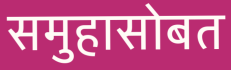
समुहासोबत